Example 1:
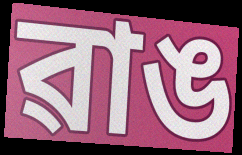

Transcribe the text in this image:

ৱাঙ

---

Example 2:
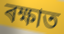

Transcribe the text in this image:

ৰক্ষাত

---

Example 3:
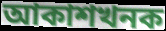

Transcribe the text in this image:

আকাশখনক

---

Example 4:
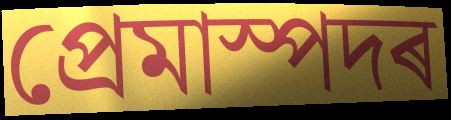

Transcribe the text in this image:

প্ৰেমাস্পদৰ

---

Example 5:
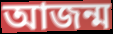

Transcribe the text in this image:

আজন্ম